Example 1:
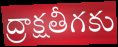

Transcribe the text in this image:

ద్రాక్షతీగకు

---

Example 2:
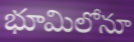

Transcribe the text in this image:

భూమిలోనూ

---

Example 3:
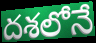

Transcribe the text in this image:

దశలోనే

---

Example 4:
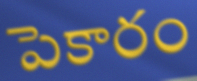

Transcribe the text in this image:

పెకారం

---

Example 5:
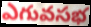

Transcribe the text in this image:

ఎగువసభ